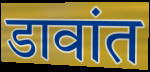
डावांत